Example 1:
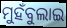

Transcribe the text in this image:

ମୁହଁବୁଲାଇ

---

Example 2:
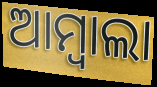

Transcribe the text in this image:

ଆମ୍ବାଲା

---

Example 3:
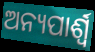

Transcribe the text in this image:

ଅନ୍ୟପାର୍ଶ୍ୱ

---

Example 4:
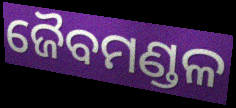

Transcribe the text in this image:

ଜୈବମଣ୍ଡଳ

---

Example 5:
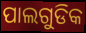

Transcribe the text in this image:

ପାଲଗୁଡିକ